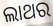
ଲାଥର